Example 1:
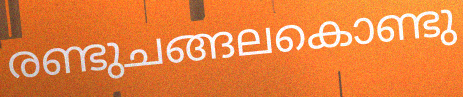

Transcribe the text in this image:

രണ്ടുചങ്ങലകൊണ്ടു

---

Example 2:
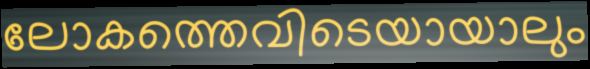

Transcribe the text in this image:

ലോകത്തെവിടെയായാലും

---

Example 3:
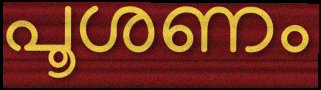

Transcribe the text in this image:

പൂശണം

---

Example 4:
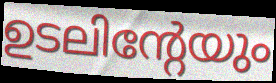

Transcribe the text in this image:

ഉടലിന്റേയും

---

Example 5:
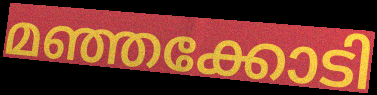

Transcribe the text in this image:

മഞ്ഞക്കോടി